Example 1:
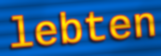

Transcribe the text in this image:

lebten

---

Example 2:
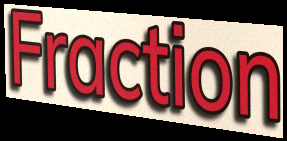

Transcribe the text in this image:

Fraction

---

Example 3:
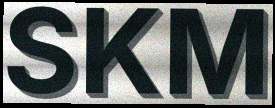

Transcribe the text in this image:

SKM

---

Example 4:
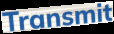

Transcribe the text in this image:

Transmit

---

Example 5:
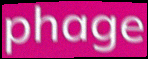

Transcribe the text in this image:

phage